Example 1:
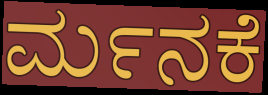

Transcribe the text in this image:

ರ್ಮನಕೆ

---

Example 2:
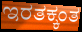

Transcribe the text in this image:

ಇರತಕ್ಕಂತ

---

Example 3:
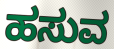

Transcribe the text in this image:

ಹಸುವ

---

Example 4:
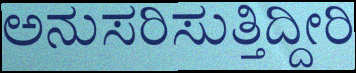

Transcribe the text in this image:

ಅನುಸರಿಸುತ್ತಿದ್ದೀರಿ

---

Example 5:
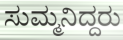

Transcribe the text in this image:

ಸುಮ್ಮನಿದ್ದರು